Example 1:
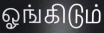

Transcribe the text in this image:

ஓங்கிடும்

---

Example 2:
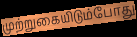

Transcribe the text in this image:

முற்றுகையிடும்போது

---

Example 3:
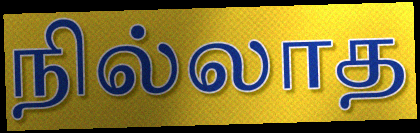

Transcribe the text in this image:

நில்லாத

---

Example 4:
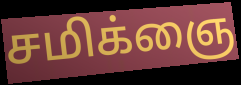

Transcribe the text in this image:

சமிக்ஞை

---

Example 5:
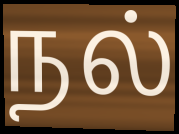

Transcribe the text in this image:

நல்